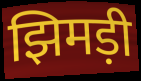
झिमड़ी